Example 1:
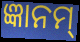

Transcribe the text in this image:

ଜ୍ଞାନମ୍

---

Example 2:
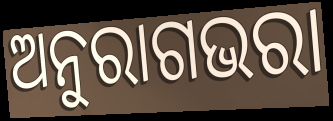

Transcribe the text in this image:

ଅନୁରାଗଭରା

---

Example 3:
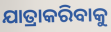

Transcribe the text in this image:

ଯାତ୍ରାକରିବାକୁ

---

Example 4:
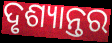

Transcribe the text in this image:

ଦୃଶ୍ୟାନ୍ତର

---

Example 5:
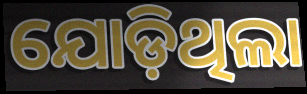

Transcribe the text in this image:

ଯୋଡ଼ିଥିଲା